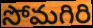
సోమగిరి